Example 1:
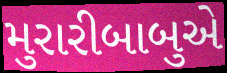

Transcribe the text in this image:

મુરારીબાબુએ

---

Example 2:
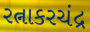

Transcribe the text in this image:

રત્નાકરચંદ્ર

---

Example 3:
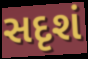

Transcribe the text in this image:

સદૃશં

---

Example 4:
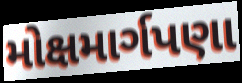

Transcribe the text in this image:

મોક્ષમાર્ગપણા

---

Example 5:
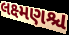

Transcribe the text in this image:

લક્ષ્મણશ્ચ